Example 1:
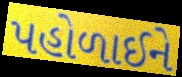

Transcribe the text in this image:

પહોળાઈને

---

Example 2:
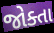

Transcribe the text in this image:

જોક્તા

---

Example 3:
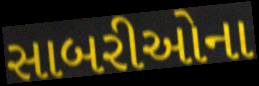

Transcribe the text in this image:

સાબરીઓના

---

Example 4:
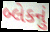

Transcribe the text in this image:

બ્લેકનું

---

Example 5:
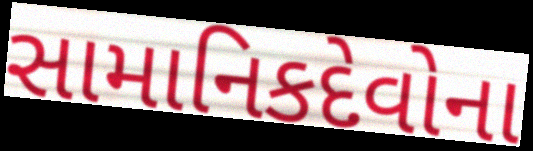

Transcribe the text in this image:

સામાનિકદેવોના